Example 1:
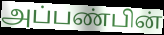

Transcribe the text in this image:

அப்பண்பின்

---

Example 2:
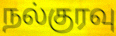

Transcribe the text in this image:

நல்குரவு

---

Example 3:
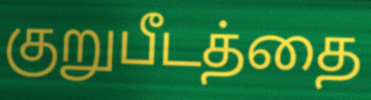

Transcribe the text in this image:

குறுபீடத்தை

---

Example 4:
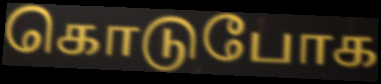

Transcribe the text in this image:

கொடுபோக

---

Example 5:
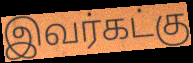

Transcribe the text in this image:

இவர்கட்கு